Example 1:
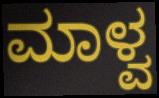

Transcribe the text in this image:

ಮಾಳ್ವ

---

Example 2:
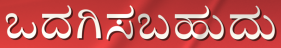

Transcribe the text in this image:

ಒದಗಿಸಬಹುದು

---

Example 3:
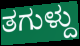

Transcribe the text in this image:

ತಗುಳ್ದು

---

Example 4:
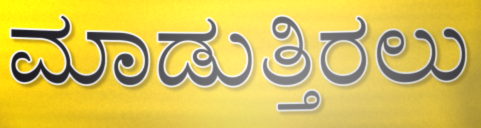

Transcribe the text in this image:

ಮಾಡುತ್ತಿರಲು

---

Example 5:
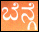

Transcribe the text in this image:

ಬೆನ್ಗೆ